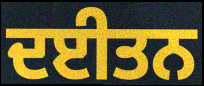
ਦਈਤਨ